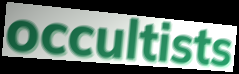
occultists